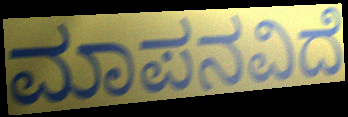
ಮಾಪನವಿದೆ